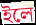
ইলে